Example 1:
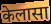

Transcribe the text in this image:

केलासा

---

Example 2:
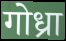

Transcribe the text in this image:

गोध्रा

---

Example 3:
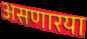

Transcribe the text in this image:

असणारया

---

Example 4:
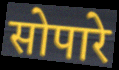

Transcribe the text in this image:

सोपारे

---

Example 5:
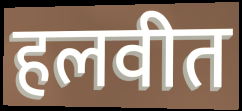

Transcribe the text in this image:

हलवीत